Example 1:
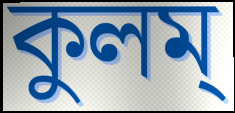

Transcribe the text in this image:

কুলম্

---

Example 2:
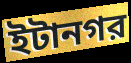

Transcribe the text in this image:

ইটানগর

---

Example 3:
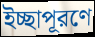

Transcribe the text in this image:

ইচ্ছাপূরণে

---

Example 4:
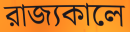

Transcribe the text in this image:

রাজ্যকালে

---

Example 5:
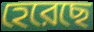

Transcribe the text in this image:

হেরেছে